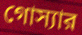
গোস্যার